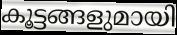
കൂട്ടങ്ങളുമായി